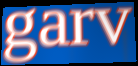
garv